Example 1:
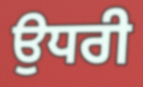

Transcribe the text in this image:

ਉਧਰੀ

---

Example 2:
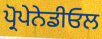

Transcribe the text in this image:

ਪ੍ਰੋਪੇਨੇਡੀਓਲ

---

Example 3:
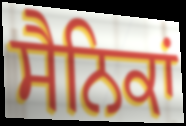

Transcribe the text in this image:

ਸੈਨਿਕਾਂ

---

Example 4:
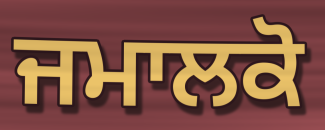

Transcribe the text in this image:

ਜਮਾਲਕੋ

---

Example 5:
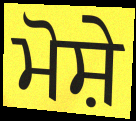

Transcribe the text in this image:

ਮੋਸ਼ੇ